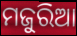
ମଜୁରିଆ